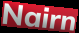
Nairn